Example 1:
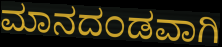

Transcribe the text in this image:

ಮಾನದಂಡವಾಗಿ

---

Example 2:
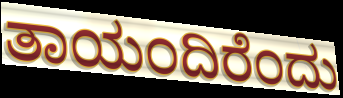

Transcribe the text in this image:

ತಾಯಂದಿರೆಂದು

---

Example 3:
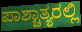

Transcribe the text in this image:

ಪಾಶ್ಚಾತ್ಯರಲ್ಲಿ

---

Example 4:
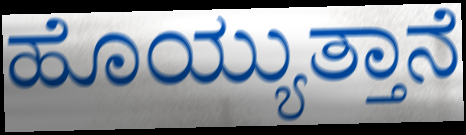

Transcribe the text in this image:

ಹೊಯ್ಯುತ್ತಾನೆ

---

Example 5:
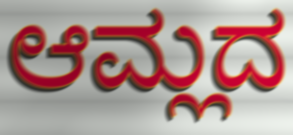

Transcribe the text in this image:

ಆಮ್ಲದ